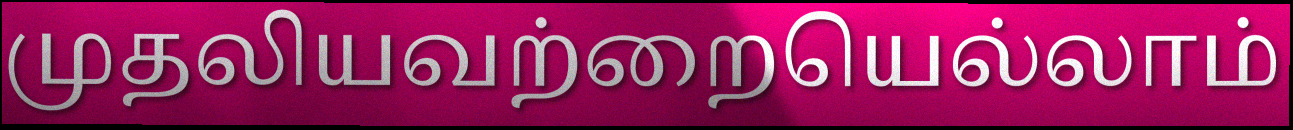
முதலியவற்றையெல்லாம்